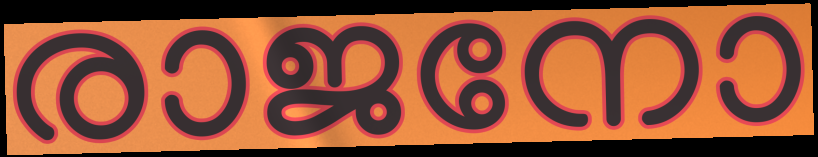
രാജനോ